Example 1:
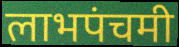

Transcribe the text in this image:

लाभपंचमी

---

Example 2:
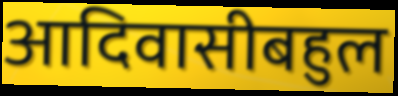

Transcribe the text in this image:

आदिवासीबहुल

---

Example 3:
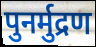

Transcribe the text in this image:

पुनर्मुद्रण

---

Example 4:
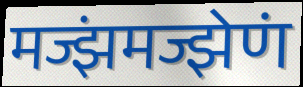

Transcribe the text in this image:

मज्झंमज्झेणं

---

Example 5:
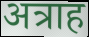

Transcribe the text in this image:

अत्राह